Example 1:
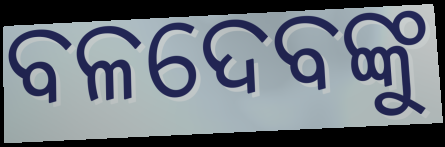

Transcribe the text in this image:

ବଳଦେବଙ୍କୁ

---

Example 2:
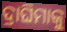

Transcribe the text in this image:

ଦ୍ରାଘିମାକୁ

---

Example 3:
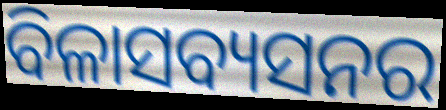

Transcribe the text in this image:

ବିଳାସବ୍ୟସନର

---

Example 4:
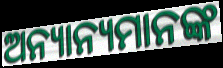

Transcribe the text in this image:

ଅନ୍ୟାନ୍ୟମାନଙ୍କ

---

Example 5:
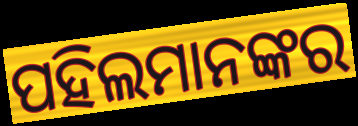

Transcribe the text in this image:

ପହିଲମାନଙ୍କର